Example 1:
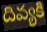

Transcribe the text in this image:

దివ్యకి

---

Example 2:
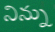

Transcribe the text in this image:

నిన్ను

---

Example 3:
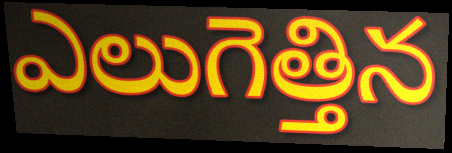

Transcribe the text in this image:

ఎలుగెత్తిన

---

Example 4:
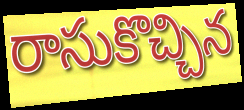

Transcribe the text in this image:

రాసుకొచ్చిన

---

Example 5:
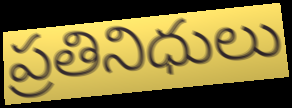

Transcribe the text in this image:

ప్రతినిధులు